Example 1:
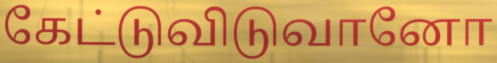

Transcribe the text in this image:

கேட்டுவிடுவானோ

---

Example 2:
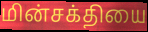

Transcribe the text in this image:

மின்சக்தியை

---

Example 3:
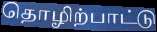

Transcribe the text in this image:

தொழிற்பாட்டு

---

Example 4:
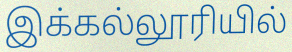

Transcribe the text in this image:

இக்கல்லூரியில்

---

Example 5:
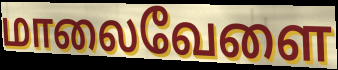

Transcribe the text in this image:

மாலைவேளை